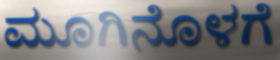
ಮೂಗಿನೊಳಗೆ